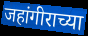
जहांगीराच्या